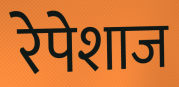
रेपेशाज